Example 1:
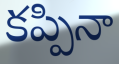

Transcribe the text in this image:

కప్పినా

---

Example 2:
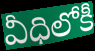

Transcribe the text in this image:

వీధిలోకీ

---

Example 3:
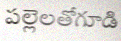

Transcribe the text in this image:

పల్లెలతోగూడి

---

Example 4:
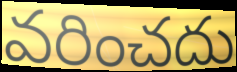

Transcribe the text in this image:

వరించదు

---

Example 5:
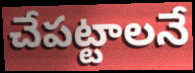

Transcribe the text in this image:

చేపట్టాలనే